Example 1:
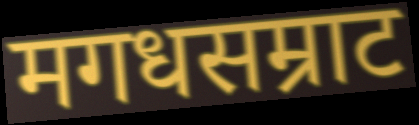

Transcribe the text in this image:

मगधसम्राट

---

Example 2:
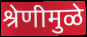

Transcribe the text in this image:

श्रेणीमुळे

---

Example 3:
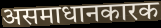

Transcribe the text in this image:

असमाधानकारक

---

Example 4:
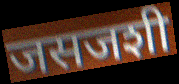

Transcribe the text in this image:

जसजशी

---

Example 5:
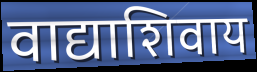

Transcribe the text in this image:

वाद्याशिवाय